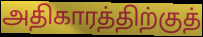
அதிகாரத்திற்குத்